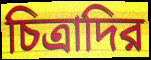
চিত্রাদির